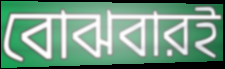
বোঝবারই